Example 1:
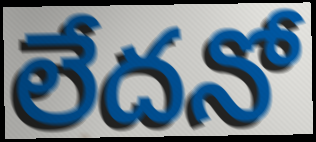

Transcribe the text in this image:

లేదనో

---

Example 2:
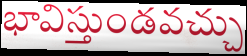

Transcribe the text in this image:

భావిస్తుండవచ్చు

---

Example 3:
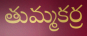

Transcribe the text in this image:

తుమ్మకర్ర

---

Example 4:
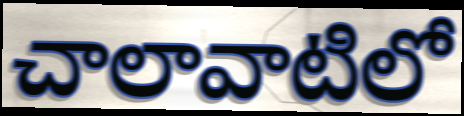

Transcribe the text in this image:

చాలావాటిలో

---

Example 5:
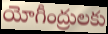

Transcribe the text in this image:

యోగీంద్రులకు